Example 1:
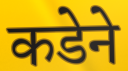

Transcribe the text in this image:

कडेने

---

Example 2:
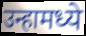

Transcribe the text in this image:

उन्हामध्ये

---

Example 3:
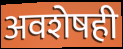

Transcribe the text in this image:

अवशेषही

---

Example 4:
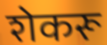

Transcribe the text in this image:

शेकरू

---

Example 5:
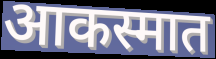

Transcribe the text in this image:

आकस्मात